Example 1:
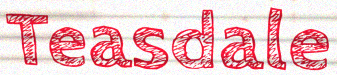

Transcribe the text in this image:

Teasdale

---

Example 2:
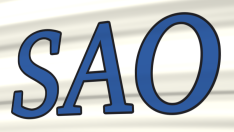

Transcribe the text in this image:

SAO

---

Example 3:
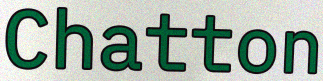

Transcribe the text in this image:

Chatton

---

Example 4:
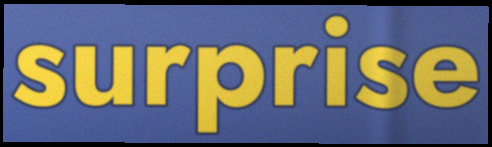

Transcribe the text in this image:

surprise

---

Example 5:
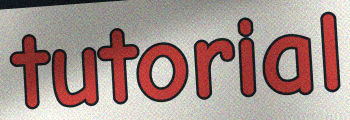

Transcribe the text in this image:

tutorial